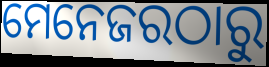
ମେନେଜରଠାରୁ